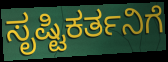
ಸೃಷ್ಟಿಕರ್ತನಿಗೆ